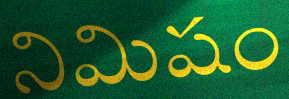
నిమిషం